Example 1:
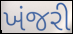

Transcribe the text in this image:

ખંજરી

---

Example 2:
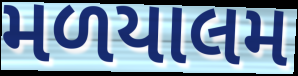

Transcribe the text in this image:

મળયાલમ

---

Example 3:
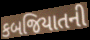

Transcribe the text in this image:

કબજિયાતની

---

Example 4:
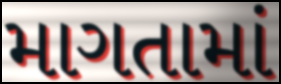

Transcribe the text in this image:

માગતામાં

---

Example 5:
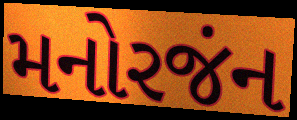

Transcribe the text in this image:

મનોરજંન